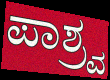
ಪಾಶ್ರ್ವ